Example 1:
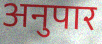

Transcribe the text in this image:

अनुपार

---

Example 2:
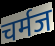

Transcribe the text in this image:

चर्मज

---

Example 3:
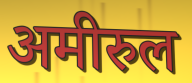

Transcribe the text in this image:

अमीरुल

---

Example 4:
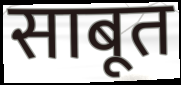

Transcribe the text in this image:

साबूत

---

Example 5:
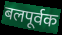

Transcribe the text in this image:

बलपूर्वक